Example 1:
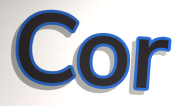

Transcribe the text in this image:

Cor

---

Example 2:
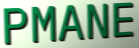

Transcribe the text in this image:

PMANE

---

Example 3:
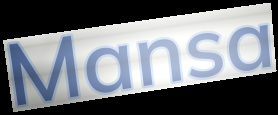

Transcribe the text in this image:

Mansa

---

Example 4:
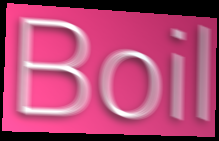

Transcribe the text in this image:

Boil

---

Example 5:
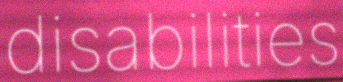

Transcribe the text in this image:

disabilities